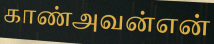
காண்அவன்என்